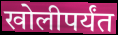
खोलीपर्यंत